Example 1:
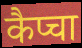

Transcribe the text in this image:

कैप्चा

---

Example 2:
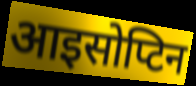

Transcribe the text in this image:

आइसोप्टिन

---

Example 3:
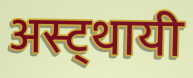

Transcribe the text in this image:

अस्ट्थायी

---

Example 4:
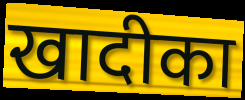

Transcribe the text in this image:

खादीका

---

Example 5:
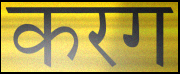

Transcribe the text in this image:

करग